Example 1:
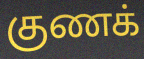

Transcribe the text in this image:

குணக்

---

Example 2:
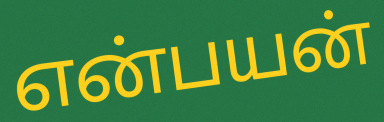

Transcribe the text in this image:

என்பயன்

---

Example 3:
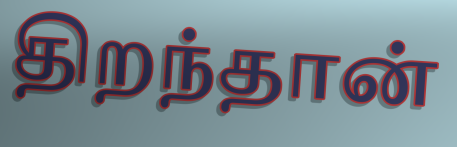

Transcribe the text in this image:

திறந்தான்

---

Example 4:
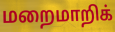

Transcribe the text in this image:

மறைமாறிக்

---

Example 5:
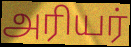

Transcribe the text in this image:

அரியர்